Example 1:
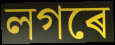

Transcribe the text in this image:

লগৰে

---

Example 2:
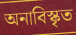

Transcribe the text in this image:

অনাবিস্কৃত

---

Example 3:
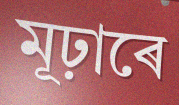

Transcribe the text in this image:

মূঢ়াৰে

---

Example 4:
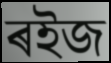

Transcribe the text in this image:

ৰইজ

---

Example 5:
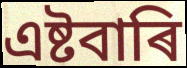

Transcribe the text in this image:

এষ্টবাৰি